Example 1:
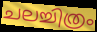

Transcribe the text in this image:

ചലച്ചിത്രം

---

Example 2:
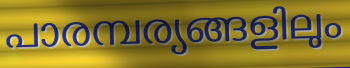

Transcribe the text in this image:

പാരമ്പര്യങ്ങളിലും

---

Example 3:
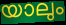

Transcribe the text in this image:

യാലും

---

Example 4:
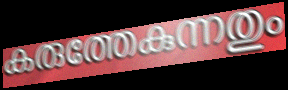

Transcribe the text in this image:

കരുത്തേകുന്നതും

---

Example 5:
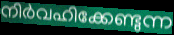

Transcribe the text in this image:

നിർവഹിക്കേണ്ടുന്ന